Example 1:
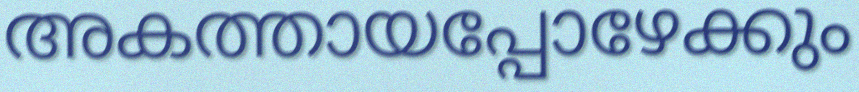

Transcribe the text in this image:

അകത്തായപ്പോഴേക്കും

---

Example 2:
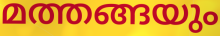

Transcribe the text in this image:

മത്തങ്ങയും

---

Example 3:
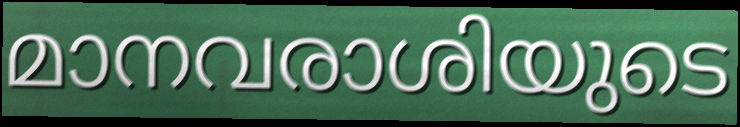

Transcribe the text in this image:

മാനവരാശിയുടെ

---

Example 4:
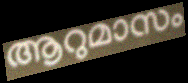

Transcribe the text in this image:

ആറുമാസം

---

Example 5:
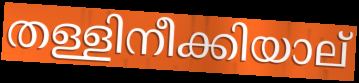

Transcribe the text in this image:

തള്ളിനീക്കിയാല്